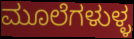
ಮೂಲೆಗಳುಳ್ಳ